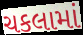
ચકલામાં